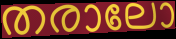
തരാലോ